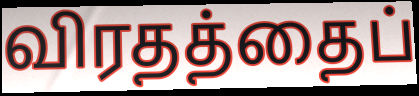
விரதத்தைப்